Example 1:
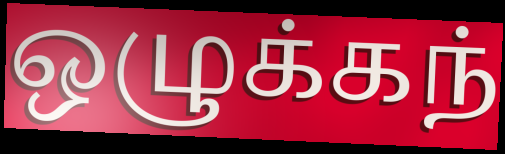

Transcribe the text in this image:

ஒழுக்கந்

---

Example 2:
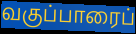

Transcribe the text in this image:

வகுப்பாரைப்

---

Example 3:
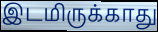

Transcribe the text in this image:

இடமிருக்காது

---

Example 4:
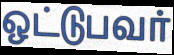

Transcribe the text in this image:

ஒட்டுபவர்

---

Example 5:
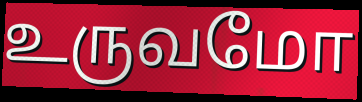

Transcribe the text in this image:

உருவமோ